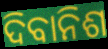
ଦିବାନିଶ